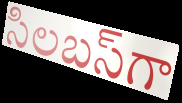
సిలబస్‌గా